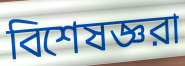
বিশেষজ্ঞরা